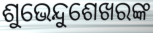
ଶୁଭେନ୍ଦୁଶେଖରଙ୍କ